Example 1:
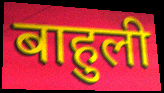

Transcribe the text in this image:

बाहुली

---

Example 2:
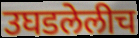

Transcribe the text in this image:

उघडलेलीच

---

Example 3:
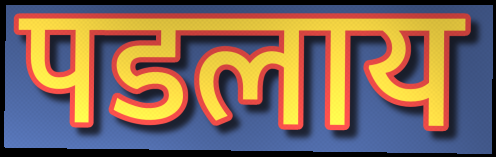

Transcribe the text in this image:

पडलाय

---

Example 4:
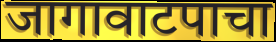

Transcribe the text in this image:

जागावाटपाचा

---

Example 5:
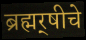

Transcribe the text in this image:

ब्रह्मर्षीचे